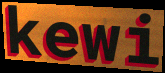
kewi